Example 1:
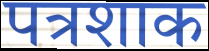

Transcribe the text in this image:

पत्रशाक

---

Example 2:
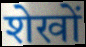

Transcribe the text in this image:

शेखों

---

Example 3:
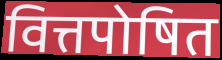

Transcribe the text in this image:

वित्तपोषित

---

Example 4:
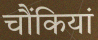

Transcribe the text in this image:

चौंकियां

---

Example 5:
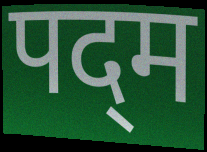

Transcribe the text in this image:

पद्‌म